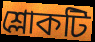
শ্লোকটি